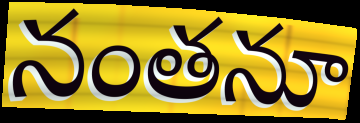
నంతనూ